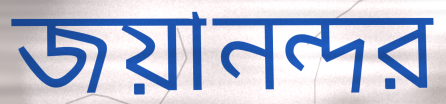
জয়ানন্দর